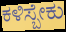
ಕಳಿಸ್ಬೇಕು